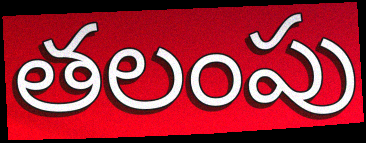
తలంపు